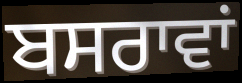
ਬਸਰਾਵਾਂ